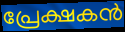
പ്രേക്ഷകൻ